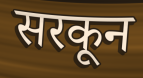
सरकून